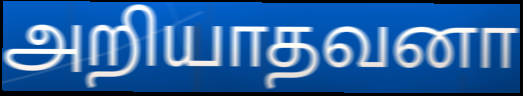
அறியாதவனா